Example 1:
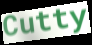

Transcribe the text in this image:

Cutty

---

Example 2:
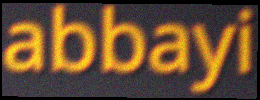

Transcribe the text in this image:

abbayi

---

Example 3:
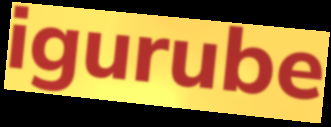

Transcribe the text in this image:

igurube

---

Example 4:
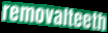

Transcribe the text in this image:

removalteeth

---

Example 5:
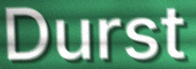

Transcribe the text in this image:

Durst